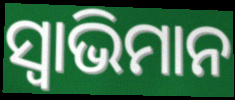
ସ୍ୱାଭିମାନ